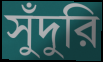
সুঁদুরি